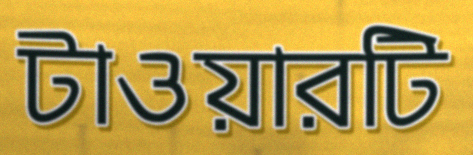
টাওয়ারটি